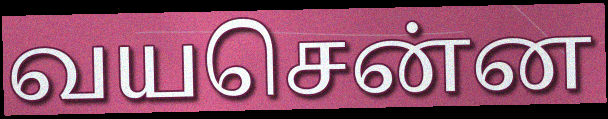
வயசென்ன